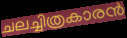
ചലച്ചിത്രകാരൻ